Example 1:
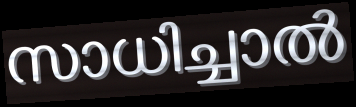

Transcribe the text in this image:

സാധിച്ചാൽ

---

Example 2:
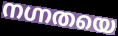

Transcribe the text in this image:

നഗ്നതയെ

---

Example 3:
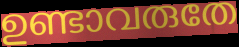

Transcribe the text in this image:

ഉണ്ടാവരുതേ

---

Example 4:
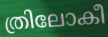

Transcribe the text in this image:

ത്രിലോകീ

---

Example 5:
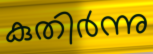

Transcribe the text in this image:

കുതിർന്നു